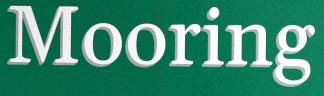
Mooring